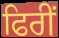
ਫਿਰੀਂ